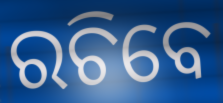
ରଚିବେ